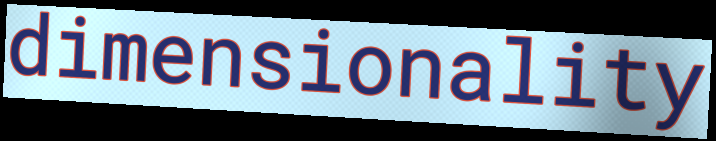
dimensionality